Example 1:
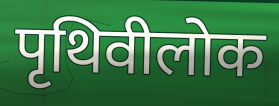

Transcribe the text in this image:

पृथिवीलोक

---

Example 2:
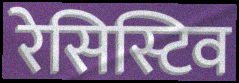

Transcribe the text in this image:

रेसिस्टिव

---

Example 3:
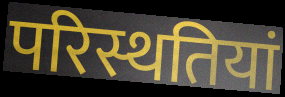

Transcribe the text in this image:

परिस्थतियां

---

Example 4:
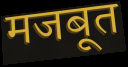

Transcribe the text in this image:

मजबूत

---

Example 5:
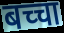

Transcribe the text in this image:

बच्चा